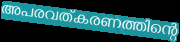
അപരവത്കരണത്തിന്റെ